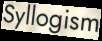
Syllogism